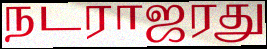
நடராஜரது